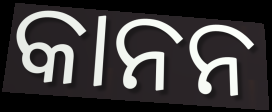
କାନନ